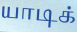
யாடிக்